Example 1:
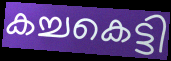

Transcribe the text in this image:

കച്ചകെട്ടി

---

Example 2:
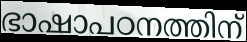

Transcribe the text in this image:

ഭാഷാപഠനത്തിന്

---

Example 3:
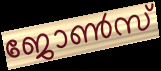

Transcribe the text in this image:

ജോൺസ്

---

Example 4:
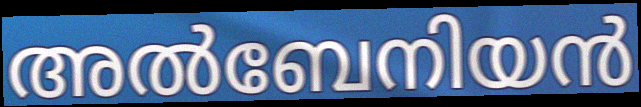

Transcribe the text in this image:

അൽബേനിയൻ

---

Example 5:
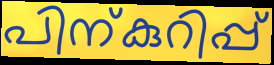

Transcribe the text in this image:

പിന്കുറിപ്പ്